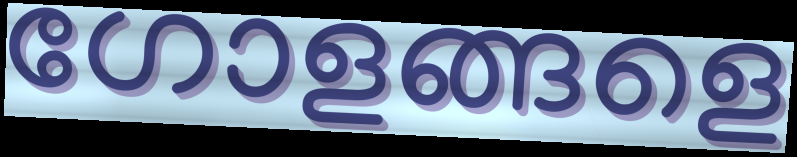
ഗോളങ്ങളെ